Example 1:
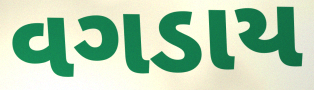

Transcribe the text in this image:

વગડાય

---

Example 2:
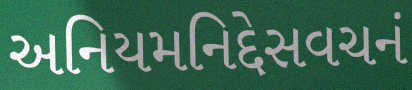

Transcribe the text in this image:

અનિયમનિદ્દેસવચનં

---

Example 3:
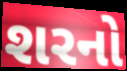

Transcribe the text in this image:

શરનો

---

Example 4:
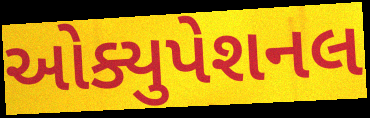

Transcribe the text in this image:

ઓક્યુપેશનલ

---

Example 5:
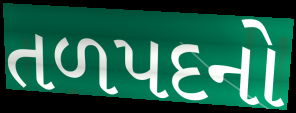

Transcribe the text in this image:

તળપદનો